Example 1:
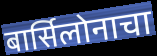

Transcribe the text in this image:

बार्सिलोनाचा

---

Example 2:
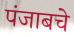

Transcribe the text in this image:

पंजाबचे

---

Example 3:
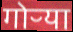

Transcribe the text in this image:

गोऱ्या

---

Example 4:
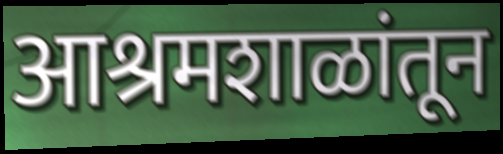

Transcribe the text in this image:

आश्रमशाळांतून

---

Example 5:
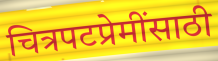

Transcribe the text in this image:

चित्रपटप्रेमींसाठी